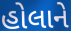
હોલાને